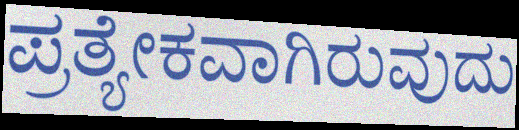
ಪ್ರತ್ಯೇಕವಾಗಿರುವುದು